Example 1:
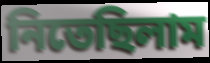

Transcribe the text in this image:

নিতেছিলাম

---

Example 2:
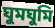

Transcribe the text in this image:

ঘুমঘুমি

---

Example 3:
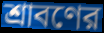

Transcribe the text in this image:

শ্রাবণের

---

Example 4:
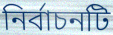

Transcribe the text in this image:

নির্বাচনটি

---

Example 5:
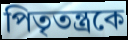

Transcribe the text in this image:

পিতৃতন্ত্রকে